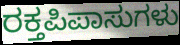
ರಕ್ತಪಿಪಾಸುಗಳು